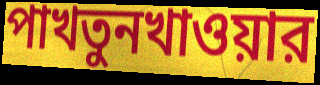
পাখতুনখাওয়ার